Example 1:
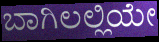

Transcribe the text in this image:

ಬಾಗಿಲಲ್ಲಿಯೇ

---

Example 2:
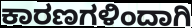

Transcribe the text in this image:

ಕಾರಣಗಳಿಂದಾಗಿ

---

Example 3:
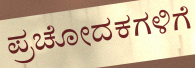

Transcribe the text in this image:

ಪ್ರಚೋದಕಗಳಿಗೆ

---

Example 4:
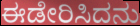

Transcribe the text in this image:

ಈಡೇರಿಸಿದನು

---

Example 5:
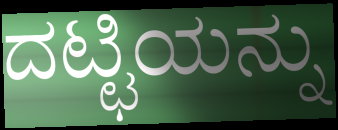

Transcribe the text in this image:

ದಟ್ಟಿಯನ್ನು